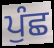
ਪੁੰਛ